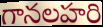
గానలహరి